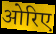
ओरिए